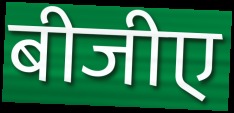
बीजीए